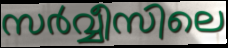
സർവ്വീസിലെ